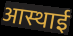
आस्थाई